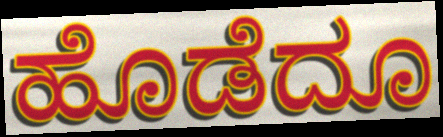
ಹೊಡೆದೂ